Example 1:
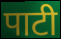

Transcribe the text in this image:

पाटी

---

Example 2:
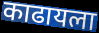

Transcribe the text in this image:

काढायला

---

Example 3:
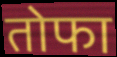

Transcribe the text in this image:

तोफा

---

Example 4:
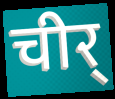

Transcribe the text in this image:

चीर्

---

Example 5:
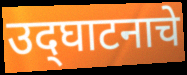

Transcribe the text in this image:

उद्‌घाटनाचे